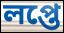
লপ্তে